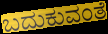
ಬದುಕುವಂತೆ